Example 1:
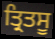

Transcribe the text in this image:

ਤ੍ਰਿਤਸੂ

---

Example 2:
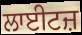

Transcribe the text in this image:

ਲਾਈਟਜ਼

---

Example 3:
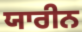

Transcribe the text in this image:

ਯਾਰੀਨ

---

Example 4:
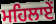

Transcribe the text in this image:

ਮਹਿਲਾਏਂ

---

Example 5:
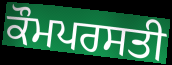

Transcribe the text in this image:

ਕੌਮਪਰਸਤੀ